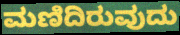
ಮಣಿದಿರುವುದು